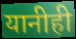
यानीही